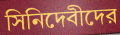
সিনিদেবীদের